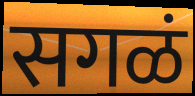
सगळं